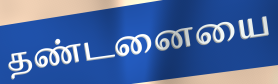
தண்டனையை